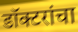
डॉक्टरांचा